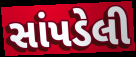
સાંપડેલી